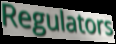
Regulators